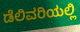
ಡೆಲಿವರಿಯಲ್ಲಿ